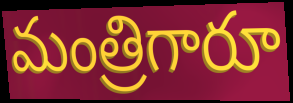
మంత్రిగారూ